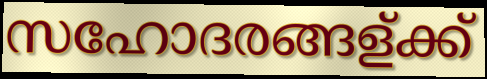
സഹോദരങ്ങള്ക്ക്